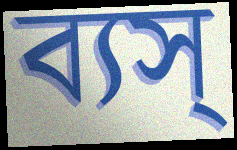
ব্যস্